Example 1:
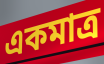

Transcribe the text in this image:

একমাত্র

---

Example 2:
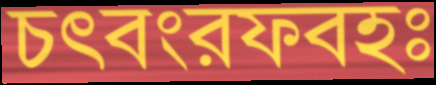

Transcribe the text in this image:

চৎবংরফবহঃ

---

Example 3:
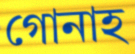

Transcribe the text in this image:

গোনাহ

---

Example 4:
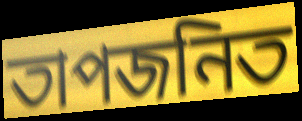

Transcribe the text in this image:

তাপজনিত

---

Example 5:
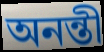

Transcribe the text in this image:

অনন্তী